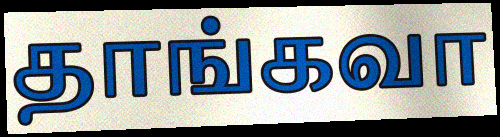
தாங்கவா